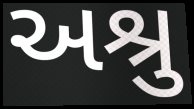
અશ્રુ